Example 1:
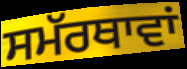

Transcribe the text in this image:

ਸਮੱਰਥਾਵਾਂ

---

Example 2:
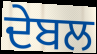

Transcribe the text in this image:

ਦੇਬਲ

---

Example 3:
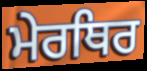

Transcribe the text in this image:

ਮੇਰਥਿਰ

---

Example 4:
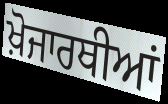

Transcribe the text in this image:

ਖ਼ੋਜਾਰਥੀਆਂ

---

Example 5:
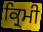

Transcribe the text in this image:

ਕ੍ਰਿਮੀ